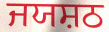
ਜਯਸ਼ਠ